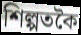
শিল্পতকৈ